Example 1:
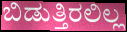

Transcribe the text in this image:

ಬಿಡುತ್ತಿರಲಿಲ್ಲ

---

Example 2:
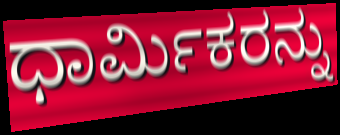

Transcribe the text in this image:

ಧಾರ್ಮಿಕರನ್ನು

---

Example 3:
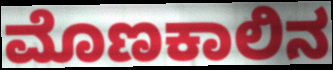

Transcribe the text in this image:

ಮೊಣಕಾಲಿನ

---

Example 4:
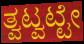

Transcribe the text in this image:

ತ್ವಟ್ವಟ್ಟೇ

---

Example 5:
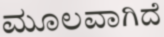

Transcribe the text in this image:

ಮೂಲವಾಗಿದೆ